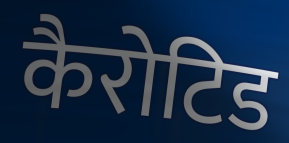
कैरोटिड